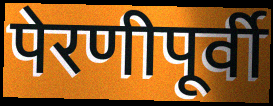
पेरणीपूर्वी